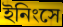
ইনিংসে